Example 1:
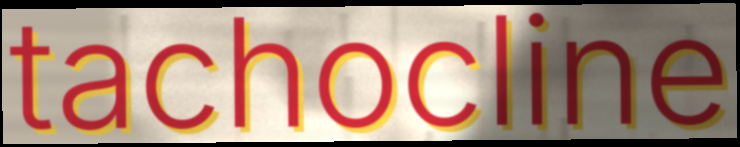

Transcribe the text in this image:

tachocline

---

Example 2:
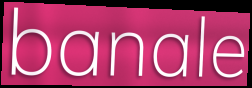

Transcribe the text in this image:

banale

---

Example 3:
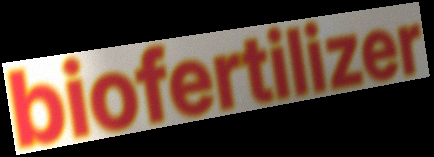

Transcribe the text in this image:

biofertilizer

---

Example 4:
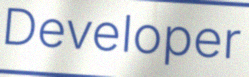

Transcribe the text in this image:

Developer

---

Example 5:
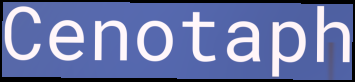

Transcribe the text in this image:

Cenotaph